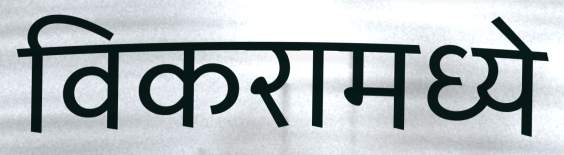
विकरामध्ये